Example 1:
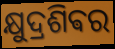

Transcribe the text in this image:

କ୍ଷୁଦ୍ରଶିଵର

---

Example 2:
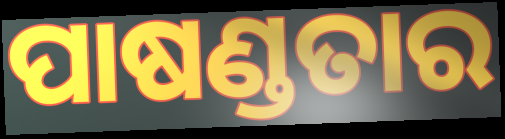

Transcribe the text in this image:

ପାଷଣ୍ଡତାର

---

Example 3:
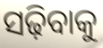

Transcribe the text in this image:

ସଢ଼ିବାକୁ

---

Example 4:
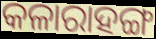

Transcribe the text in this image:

କଳାରାହଙ୍ଗ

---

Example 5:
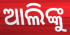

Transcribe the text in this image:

ଆଲିଙ୍କୁ